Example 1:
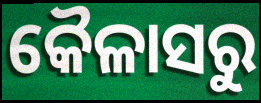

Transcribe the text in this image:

କୈଳାସରୁ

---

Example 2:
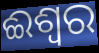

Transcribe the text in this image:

ଈଶ୍ଵର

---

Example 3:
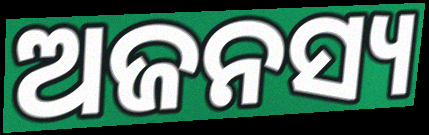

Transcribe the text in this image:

ଅଜନସ୍ୟ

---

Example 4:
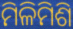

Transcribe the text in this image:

ମିଳିମିଶି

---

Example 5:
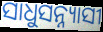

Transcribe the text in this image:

ସାଧୁସନ୍ନ୍ୟାସୀ